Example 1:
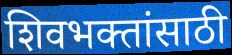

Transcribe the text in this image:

शिवभक्तांसाठी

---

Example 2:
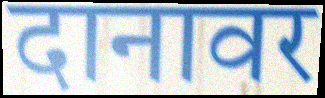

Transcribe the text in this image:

दानावर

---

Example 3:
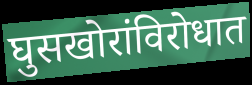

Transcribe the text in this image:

घुसखोरांविरोधात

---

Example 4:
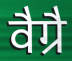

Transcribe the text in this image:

वैग्रै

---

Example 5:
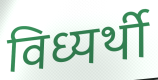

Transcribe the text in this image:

विध्यर्थी